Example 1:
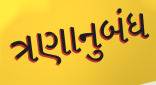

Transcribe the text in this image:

ત્રણાનુબંધ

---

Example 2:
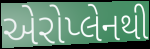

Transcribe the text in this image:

એરોપ્લેનથી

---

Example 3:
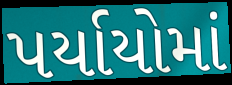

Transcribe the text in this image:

પર્યાયોમાં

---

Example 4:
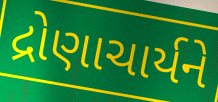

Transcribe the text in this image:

દ્રોણાચાર્યને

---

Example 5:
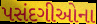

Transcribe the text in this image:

પસંદગીઓના